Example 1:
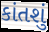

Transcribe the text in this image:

કાંતશું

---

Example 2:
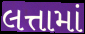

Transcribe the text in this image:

લત્તામાં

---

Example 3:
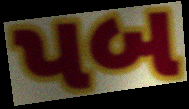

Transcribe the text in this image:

પબ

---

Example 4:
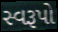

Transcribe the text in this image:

સ્વરૂપો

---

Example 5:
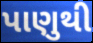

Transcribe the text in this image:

પાણુથી